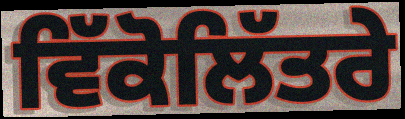
ਵਿੱਕੋਲਿੱਤਰੇ